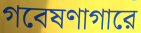
গবেষণাগারে